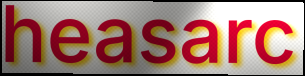
heasarc